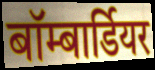
बॉम्बार्डियर